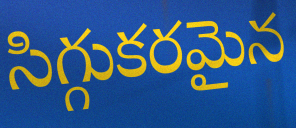
సిగ్గుకరమైన